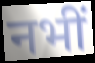
नभीं